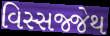
વિસ્સજ્જેથ